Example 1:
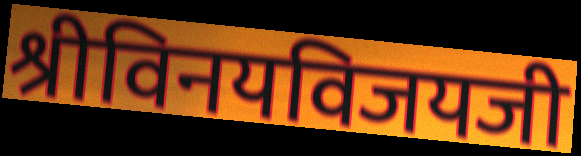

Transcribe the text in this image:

श्रीविनयविजयजी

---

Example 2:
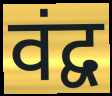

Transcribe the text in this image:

वंद्व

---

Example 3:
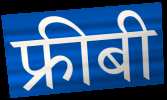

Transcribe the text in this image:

फ्रीबी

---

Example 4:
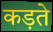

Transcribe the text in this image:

कड़ते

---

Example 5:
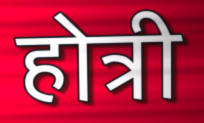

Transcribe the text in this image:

होत्री